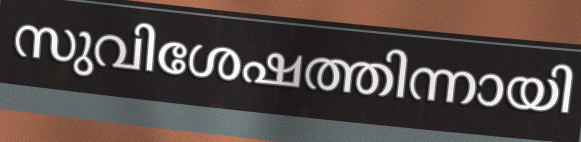
സുവിശേഷത്തിന്നായി